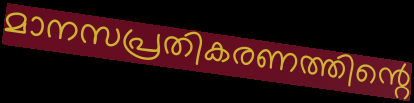
മാനസപ്രതികരണത്തിന്റെ